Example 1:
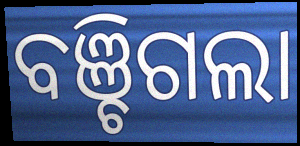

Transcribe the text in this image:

ବଞ୍ଚିଗଲା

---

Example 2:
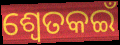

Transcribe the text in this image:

ଶ୍ୱେତକଇଁ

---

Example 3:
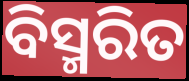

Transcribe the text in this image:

ବିସ୍ମରିତ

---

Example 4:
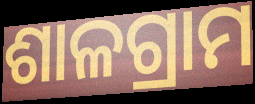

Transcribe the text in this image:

ଶାଳଗ୍ରାମ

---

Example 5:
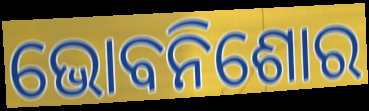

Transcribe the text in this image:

ଭୋବନିଶୋର